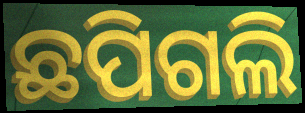
ଛପିଗଲି